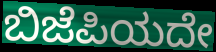
ಬಿಜೆಪಿಯದೇ